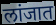
लांजात